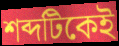
শব্দটিকেই